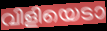
വിളിയെടാ